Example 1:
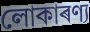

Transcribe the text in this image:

লোকাৰণ্য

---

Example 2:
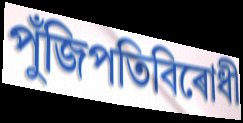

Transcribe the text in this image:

পুঁজিপতিবিৰোধী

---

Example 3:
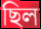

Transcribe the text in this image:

ছিল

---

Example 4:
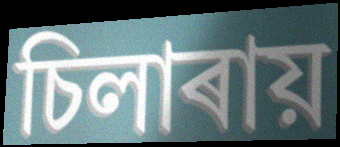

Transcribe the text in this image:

চিলাৰায়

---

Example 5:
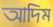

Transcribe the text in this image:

আদিম